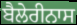
ਬੈਲੇਰੀਨਾਸ